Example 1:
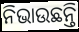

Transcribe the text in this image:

ନିଭାଉଛନ୍ତି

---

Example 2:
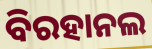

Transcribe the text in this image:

ବିରହାନଲ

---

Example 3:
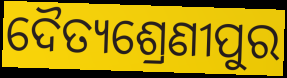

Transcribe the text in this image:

ଦୈତ୍ୟଶ୍ରେଣୀପୁର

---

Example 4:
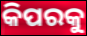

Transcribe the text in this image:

କିପରକୁ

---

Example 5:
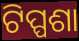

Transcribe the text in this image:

ଟିପ୍ପଶା